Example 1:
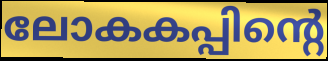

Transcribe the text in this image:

ലോകകപ്പിന്റെ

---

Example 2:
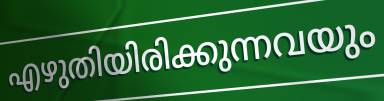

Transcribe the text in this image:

എഴുതിയിരിക്കുന്നവയും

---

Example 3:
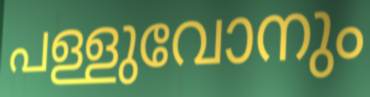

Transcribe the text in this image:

പള്ളുവോനും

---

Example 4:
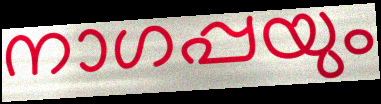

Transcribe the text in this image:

നാഗപ്പയും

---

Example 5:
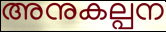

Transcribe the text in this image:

അനുകല്പന